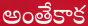
అంతేకాక